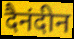
दैनंदीन